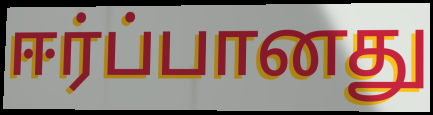
ஈர்ப்பானது